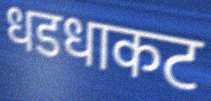
धडधाकट